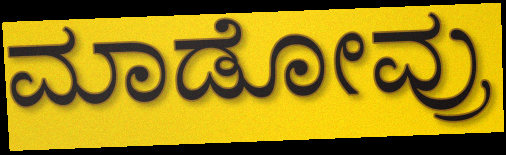
ಮಾಡೋವ್ರು